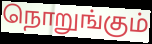
நொறுங்கும்